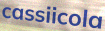
cassiicola